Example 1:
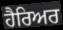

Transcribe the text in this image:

ਹੈਰਿਅਰ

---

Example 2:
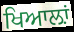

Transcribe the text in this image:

ਖਿਆਲ਼ਾਂ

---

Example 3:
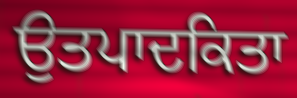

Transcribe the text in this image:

ਉਤਪਾਦਕਿਤਾ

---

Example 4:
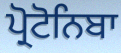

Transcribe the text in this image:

ਪ੍ਰੋਟੋਨਿਬਾ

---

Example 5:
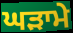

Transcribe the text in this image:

ਘੜਾਮੇ